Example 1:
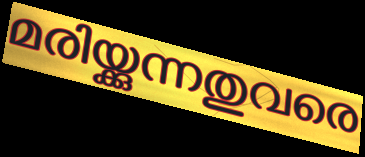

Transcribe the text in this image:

മരിയ്ക്കുന്നതുവരെ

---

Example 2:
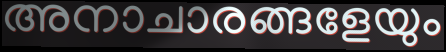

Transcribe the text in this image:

അനാചാരങ്ങളേയും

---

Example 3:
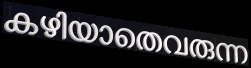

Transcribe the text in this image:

കഴിയാതെവരുന്ന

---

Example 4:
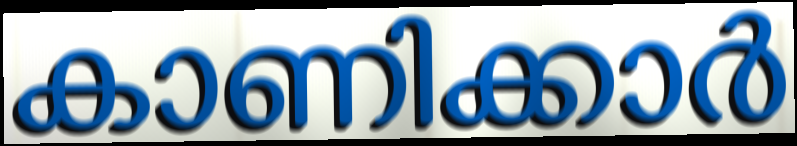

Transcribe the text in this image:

കാണിക്കാർ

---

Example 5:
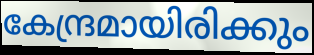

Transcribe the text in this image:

കേന്ദ്രമായിരിക്കും